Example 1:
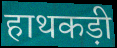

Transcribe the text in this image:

हाथकड़ी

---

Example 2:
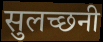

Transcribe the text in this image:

सुलच्छनी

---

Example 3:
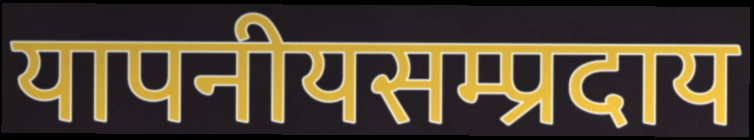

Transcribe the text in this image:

यापनीयसम्प्रदाय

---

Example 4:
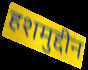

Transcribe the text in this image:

हशमुद्दीन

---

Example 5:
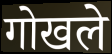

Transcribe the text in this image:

गोखले